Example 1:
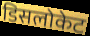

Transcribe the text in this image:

डिसलोकेट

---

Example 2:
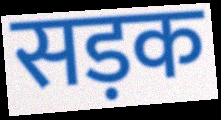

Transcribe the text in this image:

सड़क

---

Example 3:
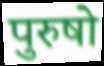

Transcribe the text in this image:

पुरुषो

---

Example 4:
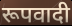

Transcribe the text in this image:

रूपवादी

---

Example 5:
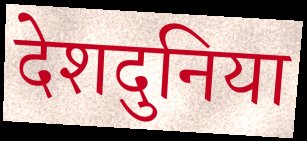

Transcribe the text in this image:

देशदुनिया